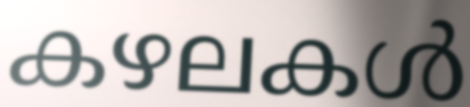
കഴലകൾ